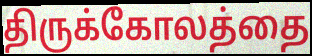
திருக்கோலத்தை